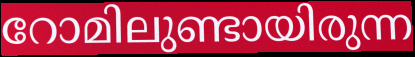
റോമിലുണ്ടായിരുന്ന